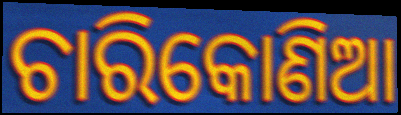
ଚାରିକୋଣିଆ